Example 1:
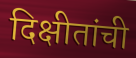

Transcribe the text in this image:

दिक्षीतांची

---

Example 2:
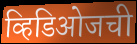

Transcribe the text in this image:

व्हिडिओजची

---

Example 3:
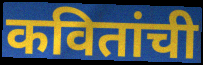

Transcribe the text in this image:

कवितांची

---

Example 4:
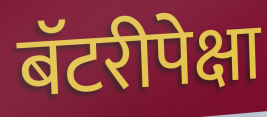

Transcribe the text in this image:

बॅटरीपेक्षा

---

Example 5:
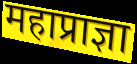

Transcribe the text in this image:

महाप्राज्ञा